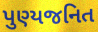
પુણ્યજનિત